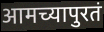
आमच्यापुरतं